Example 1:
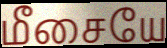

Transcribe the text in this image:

மீசையே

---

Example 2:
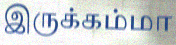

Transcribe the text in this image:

இருக்கம்மா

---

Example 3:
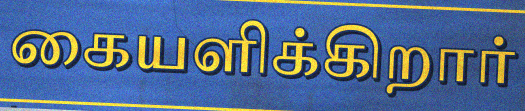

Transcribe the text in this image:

கையளிக்கிறார்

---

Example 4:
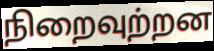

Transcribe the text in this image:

நிறைவுற்றன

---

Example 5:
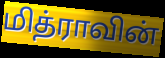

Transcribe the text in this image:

மித்ராவின்